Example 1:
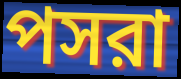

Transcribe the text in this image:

পসরা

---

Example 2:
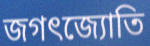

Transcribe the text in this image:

জগৎজ্যোতি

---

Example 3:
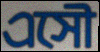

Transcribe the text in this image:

এসৌ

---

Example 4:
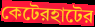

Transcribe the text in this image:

কেটেরহাটের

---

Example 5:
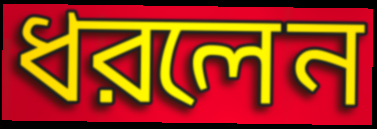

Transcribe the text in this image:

ধরলেন